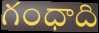
గంధాది